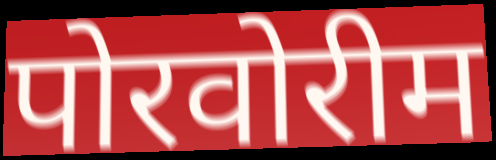
पोरवोरीम